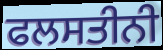
ਫਲਸਤੀਨੀ